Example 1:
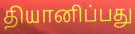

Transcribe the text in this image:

தியானிப்பது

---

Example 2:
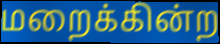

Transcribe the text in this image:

மறைக்கின்ற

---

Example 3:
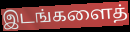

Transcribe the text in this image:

இடங்களைத்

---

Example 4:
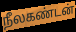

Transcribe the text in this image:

நீலகண்டன்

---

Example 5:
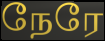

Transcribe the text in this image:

நேரே